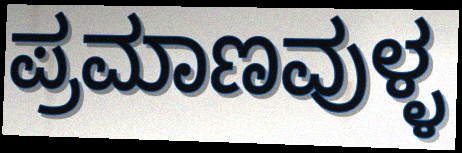
ಪ್ರಮಾಣವುಳ್ಳ